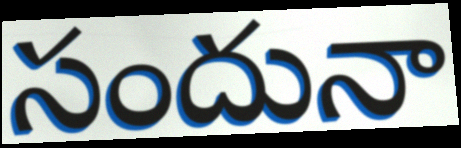
సందునా